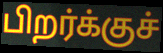
பிறர்க்குச்